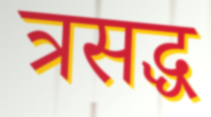
त्रसद्ध